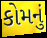
કોમનું